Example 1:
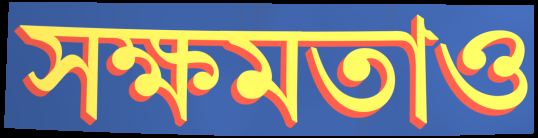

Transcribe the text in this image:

সক্ষমতাও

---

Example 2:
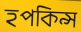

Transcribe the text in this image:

হপকিন্স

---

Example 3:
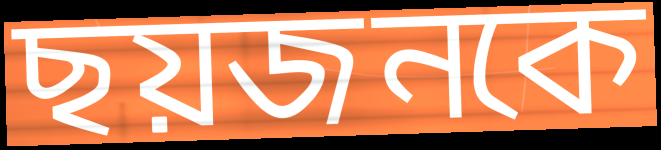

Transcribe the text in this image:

ছয়জনকে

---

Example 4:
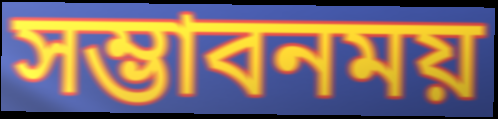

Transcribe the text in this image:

সম্ভাবনময়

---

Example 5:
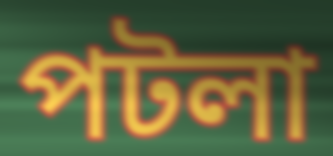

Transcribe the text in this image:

পটলা